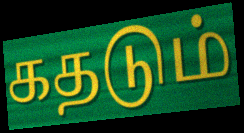
கதடும்